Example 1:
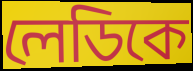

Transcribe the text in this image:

লেডিকে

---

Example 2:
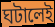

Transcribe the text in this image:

ঘটালেই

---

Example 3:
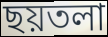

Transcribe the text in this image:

ছয়তলা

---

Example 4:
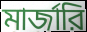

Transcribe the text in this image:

মার্জারি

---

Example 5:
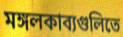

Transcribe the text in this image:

মঙ্গলকাব্যগুলিতে